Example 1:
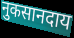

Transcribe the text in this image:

नुकसानदाय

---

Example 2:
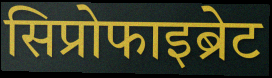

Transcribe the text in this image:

सिप्रोफाइब्रेट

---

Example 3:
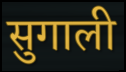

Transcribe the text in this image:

सुगाली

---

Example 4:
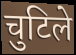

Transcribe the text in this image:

चुटिले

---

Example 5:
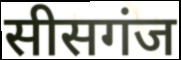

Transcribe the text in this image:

सीसगंज